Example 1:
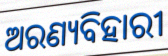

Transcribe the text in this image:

ଅରଣ୍ୟବିହାରୀ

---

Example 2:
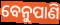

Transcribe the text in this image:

ବେନୁପାଣି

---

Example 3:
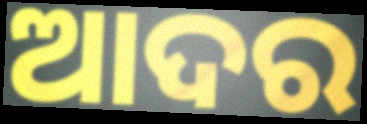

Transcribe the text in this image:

ଆଦର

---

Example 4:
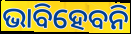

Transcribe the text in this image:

ଭାବିହେବନି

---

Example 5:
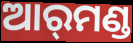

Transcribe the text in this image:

ଆର୍‌ମଣ୍ଡ